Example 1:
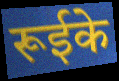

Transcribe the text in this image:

रूईके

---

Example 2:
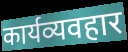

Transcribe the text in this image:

कार्यव्यवहार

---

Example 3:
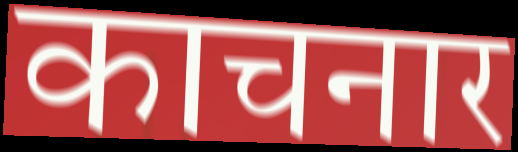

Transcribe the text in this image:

काचनार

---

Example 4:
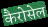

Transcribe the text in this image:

कैरोसेल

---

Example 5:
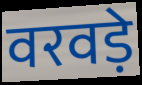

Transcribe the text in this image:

वरवड़े